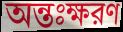
অন্তঃক্ষরণ